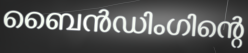
ബൈൻഡിംഗിന്റെ